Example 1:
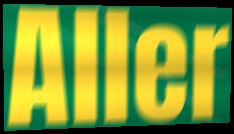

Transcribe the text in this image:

Aller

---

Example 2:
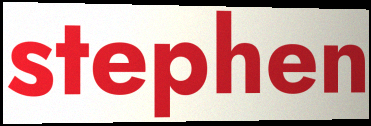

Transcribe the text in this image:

stephen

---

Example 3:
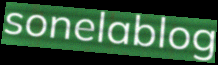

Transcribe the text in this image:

sonelablog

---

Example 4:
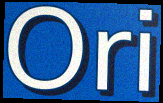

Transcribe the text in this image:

Ori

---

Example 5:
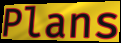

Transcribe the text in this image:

Plans